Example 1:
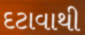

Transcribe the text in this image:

દટાવાથી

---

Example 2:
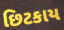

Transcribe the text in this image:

છિટકાય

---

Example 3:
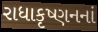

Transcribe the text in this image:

રાધાકૃષ્ણનનાં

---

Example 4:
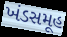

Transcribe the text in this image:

ખંડસમૂહ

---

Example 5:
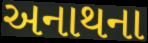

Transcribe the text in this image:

અનાથના